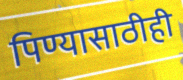
पिण्यासाठीही